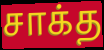
சாக்த